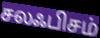
சலஃபிசம்